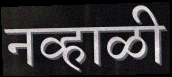
नव्हाळी